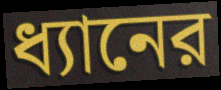
ধ্যানের